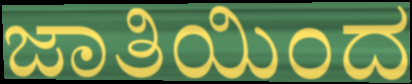
ಜಾತಿಯಿಂದ